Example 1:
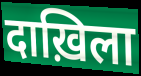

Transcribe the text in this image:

दाख़िला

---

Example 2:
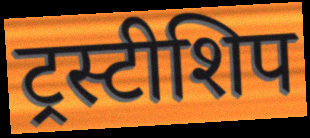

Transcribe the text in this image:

ट्रस्टीशिप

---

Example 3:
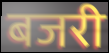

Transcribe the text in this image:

बजरी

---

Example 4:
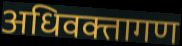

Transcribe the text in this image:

अधिवक्तागण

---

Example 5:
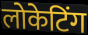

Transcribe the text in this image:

लोकेटिंग